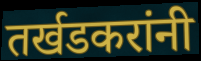
तर्खडकरांनी